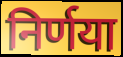
निर्णया